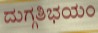
ದುಗ್ಗತಿಭಯಂ